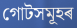
গোটসমূহৰ